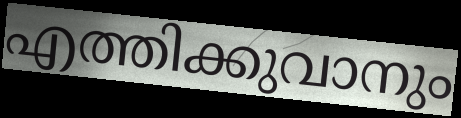
എത്തിക്കുവാനും